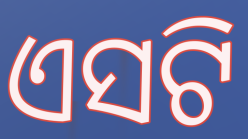
ଏସଟି